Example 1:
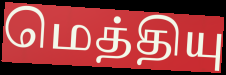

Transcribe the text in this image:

மெத்தியு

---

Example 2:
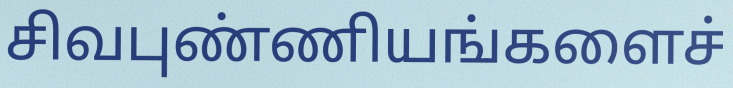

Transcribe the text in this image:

சிவபுண்ணியங்களைச்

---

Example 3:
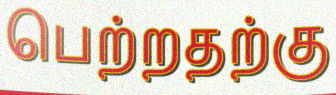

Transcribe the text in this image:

பெற்றதற்கு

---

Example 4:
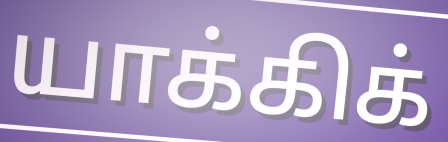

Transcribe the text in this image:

யாக்கிக்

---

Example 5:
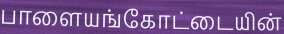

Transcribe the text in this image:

பாளையங்கோட்டையின்